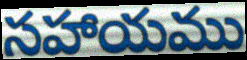
సహాయము